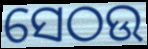
ସେଠଉ